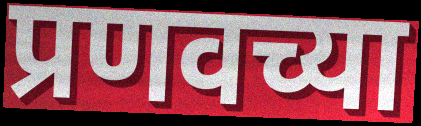
प्रणवच्या